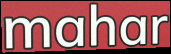
mahar